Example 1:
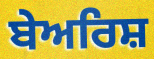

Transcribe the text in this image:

ਬੇਅਰਿਸ਼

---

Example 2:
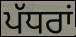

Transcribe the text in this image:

ਪੱਧਰਾਂ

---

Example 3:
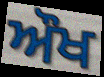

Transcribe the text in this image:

ਔਖ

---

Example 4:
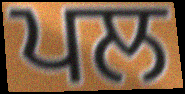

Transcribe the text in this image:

ਪਲ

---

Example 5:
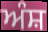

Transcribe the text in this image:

ਅੰਸ਼